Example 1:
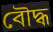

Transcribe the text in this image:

বৌদ্ধ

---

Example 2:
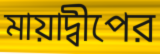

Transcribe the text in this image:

মায়াদ্বীপের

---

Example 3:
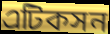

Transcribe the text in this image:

এটিকসন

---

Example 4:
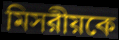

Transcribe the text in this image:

মিসরীয়কে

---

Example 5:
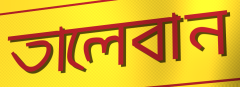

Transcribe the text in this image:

তালেবান